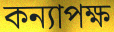
কন্যাপক্ষ